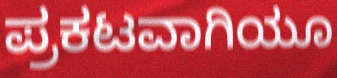
ಪ್ರಕಟವಾಗಿಯೂ